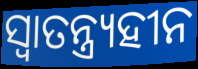
ସ୍ଵାତନ୍ତ୍ର୍ୟହୀନ